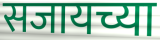
सजायच्या